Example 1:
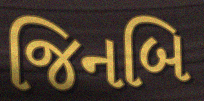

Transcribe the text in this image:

જિનબિ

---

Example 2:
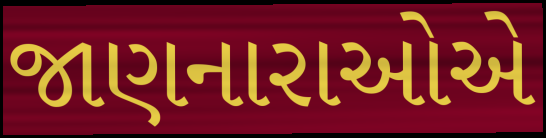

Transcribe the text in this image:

જાણનારાઓએ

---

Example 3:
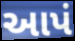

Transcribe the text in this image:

આપં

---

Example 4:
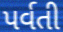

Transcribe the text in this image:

પર્વતી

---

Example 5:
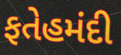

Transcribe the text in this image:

ફતેહમંદી